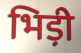
भिड़ी